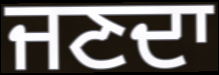
ਜਣਦਾ